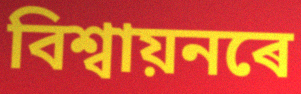
বিশ্বায়নৰে